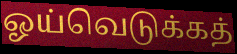
ஓய்வெடுக்கத்